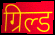
ग्रिल्ड